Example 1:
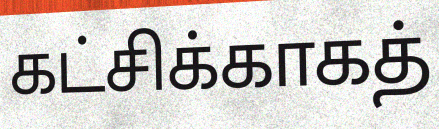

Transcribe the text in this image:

கட்சிக்காகத்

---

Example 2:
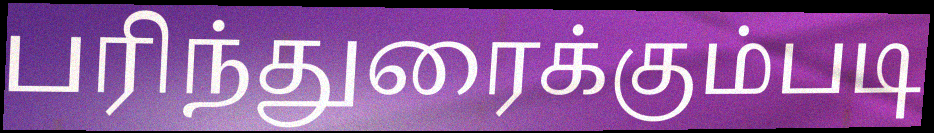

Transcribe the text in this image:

பரிந்துரைக்கும்படி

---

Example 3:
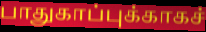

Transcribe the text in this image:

பாதுகாப்புக்காகச்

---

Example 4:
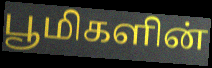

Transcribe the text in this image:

பூமிகளின்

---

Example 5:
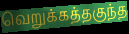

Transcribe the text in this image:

வெறுக்கத்தகுந்த